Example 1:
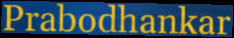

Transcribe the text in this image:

Prabodhankar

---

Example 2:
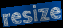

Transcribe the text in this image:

resize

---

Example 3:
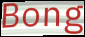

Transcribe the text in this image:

Bong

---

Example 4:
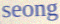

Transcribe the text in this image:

seong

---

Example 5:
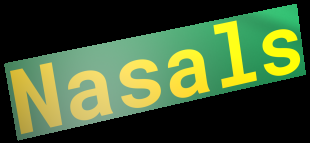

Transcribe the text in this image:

Nasals